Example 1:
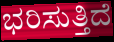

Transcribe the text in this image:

ಭರಿಸುತ್ತಿದೆ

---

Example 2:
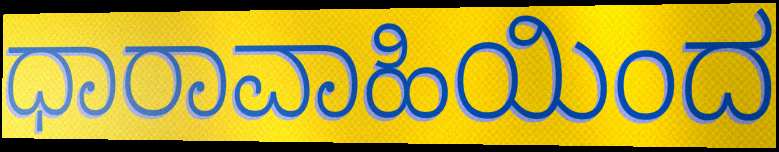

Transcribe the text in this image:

ಧಾರಾವಾಹಿಯಿಂದ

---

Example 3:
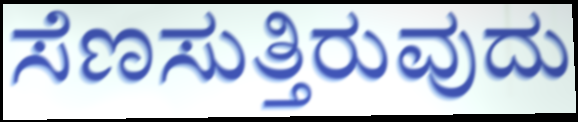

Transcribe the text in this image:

ಸೆಣಸುತ್ತಿರುವುದು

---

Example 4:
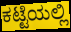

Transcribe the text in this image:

ಕಟ್ಟೆಯಲ್ಲಿ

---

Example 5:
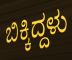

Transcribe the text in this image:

ಬಿಕ್ಕಿದ್ದಳು